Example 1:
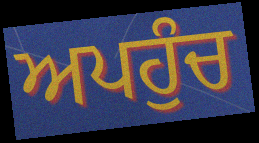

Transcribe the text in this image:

ਅਪਹੁੰਚ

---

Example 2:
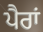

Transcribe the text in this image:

ਪੈਰਾਂ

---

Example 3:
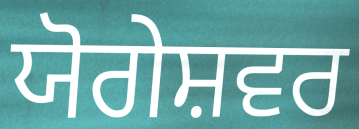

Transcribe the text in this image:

ਯੋਗੇਸ਼ਵਰ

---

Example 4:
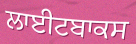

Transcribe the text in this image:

ਲਾਈਟਬਾਕਸ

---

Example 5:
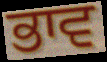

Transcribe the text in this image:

ਭਾਵ